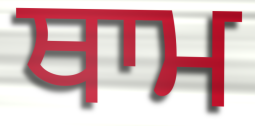
ਥਾਮ